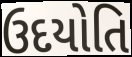
ઉદયોતિ